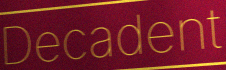
Decadent